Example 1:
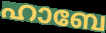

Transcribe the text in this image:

ഹാബേ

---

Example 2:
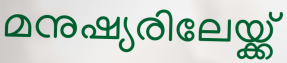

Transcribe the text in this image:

മനുഷ്യരിലേയ്ക്ക്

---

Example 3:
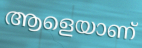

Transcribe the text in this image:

ആളെയാണ്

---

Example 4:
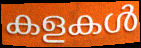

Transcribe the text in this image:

കളകൾ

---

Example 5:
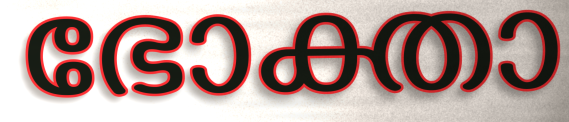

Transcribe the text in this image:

ഭോക്താ